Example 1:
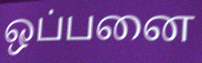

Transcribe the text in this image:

ஒப்பனை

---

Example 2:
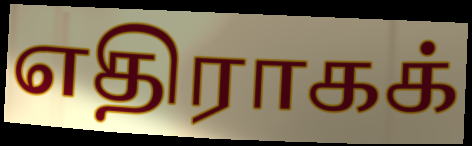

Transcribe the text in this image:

எதிராகக்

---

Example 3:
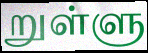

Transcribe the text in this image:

றுள்ளு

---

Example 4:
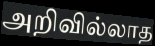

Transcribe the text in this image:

அறிவில்லாத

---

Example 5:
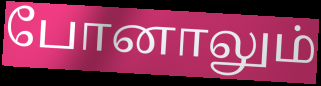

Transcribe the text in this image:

போனாலும்